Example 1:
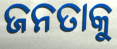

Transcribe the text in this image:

ଜନତାକୁ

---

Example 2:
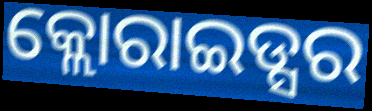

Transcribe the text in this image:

କ୍ଲୋରାଇଡ୍ସର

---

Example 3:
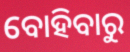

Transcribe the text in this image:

ବୋହିବାରୁ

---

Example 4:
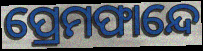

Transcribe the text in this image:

ପ୍ରେମଫାନ୍ଦେ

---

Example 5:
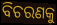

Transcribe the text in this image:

ବିଚରଣକୁ